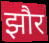
झौर